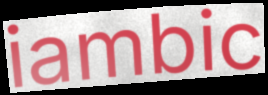
iambic